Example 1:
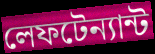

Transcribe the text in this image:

লেফটেন্যান্ট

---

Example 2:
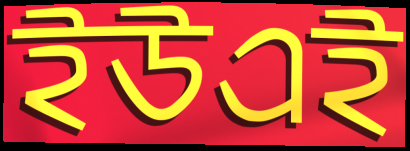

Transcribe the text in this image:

ইউএই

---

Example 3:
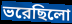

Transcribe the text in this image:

ভরেছিলো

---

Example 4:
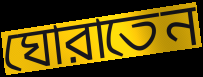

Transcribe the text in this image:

ঘোরাতেন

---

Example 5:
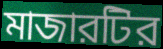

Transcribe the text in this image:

মাজারটির